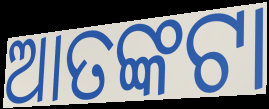
ଆତଙ୍କଟା